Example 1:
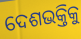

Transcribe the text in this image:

ଦେଶଭକ୍ତିକୁ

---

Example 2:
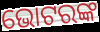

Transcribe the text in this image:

ଭୋଟରଙ୍କ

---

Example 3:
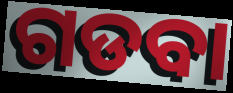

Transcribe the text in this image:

ଗଡବା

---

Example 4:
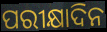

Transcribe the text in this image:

ପରୀକ୍ଷାଦିନ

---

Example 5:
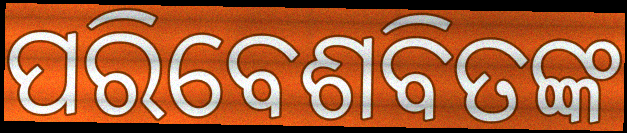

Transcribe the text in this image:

ପରିବେଶବିତଙ୍କ